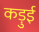
कड़ुई